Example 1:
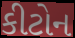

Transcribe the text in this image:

કીટોન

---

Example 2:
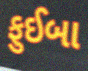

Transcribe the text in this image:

ફુઈબા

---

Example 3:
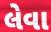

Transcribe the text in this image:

લેવા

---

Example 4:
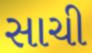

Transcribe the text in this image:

સાચી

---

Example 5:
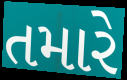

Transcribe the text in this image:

તમારે